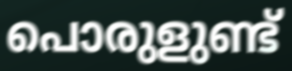
പൊരുളുണ്ട്